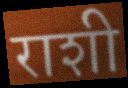
राशी